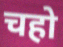
चहो